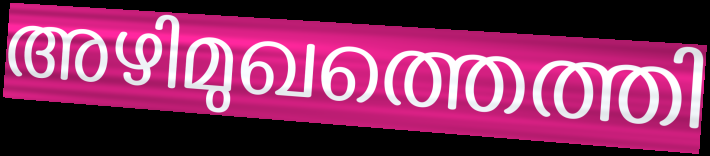
അഴിമുഖത്തെത്തി